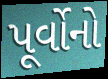
પૂર્વોનો